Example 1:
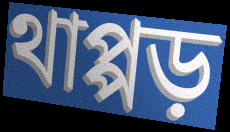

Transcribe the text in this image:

থাপ্পড়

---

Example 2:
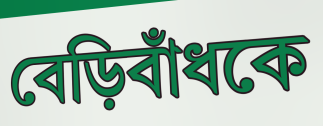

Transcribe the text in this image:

বেড়িবাঁধকে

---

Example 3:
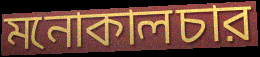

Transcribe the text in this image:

মনোকালচার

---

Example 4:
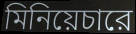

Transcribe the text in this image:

মিনিয়েচারে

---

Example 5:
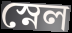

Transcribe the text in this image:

স্নেল